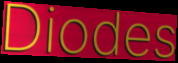
Diodes